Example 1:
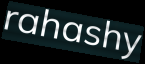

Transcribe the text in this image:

rahashy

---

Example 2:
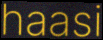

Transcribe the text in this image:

haasi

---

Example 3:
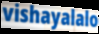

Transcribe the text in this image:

vishayalalo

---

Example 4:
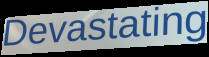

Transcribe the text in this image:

Devastating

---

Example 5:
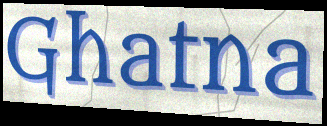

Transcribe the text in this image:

Ghatna